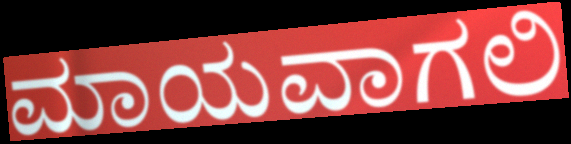
ಮಾಯವಾಗಲಿ